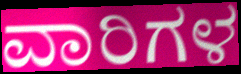
ವಾರಿಗಳ